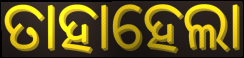
ତାହାହେଲା